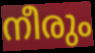
നീരും